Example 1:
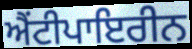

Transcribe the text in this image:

ਐਂਟੀਪਾਇਰੀਨ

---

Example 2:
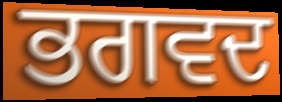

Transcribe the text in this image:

ਭਗਵਦ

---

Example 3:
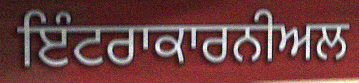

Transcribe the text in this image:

ਇੰਟਰਾਕਾਰਨੀਅਲ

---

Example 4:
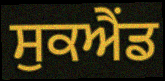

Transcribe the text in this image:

ਸੁਕਐਂਡ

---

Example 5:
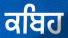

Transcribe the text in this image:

ਕਬਿਹ